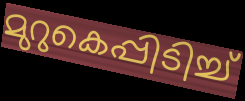
മുറുകെപ്പിടിച്ച്